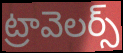
ట్రావెలర్స్